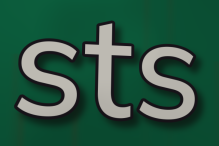
sts